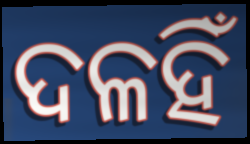
ଦଳହିଁ